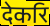
देकरि